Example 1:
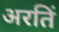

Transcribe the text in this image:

अरतिं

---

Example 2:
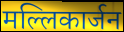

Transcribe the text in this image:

मल्लिकार्जन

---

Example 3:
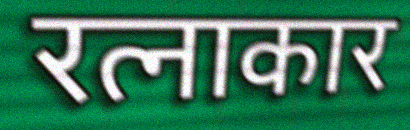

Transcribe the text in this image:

रत्नाकार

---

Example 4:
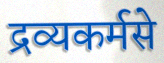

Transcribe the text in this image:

द्रव्यकर्मसे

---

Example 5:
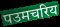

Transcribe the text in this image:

पउमचरिय